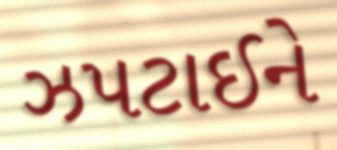
ઝપટાઈને